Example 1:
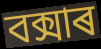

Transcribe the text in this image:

বক্সাৰ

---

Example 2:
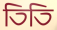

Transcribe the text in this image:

তিতি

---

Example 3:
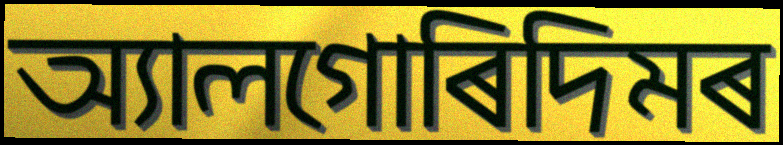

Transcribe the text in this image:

অ্যালগোৰিদিমৰ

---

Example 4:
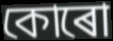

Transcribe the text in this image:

কোৰো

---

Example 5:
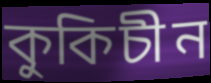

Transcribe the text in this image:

কুকিচীন